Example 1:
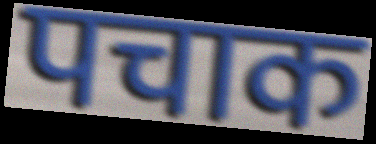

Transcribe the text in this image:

पचाक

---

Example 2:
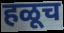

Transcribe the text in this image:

हळूच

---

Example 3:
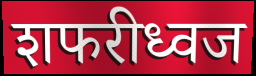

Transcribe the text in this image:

शफरीध्वज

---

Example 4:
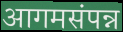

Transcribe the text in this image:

आगमसंपन्न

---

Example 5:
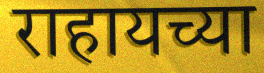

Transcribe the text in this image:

राहायच्या